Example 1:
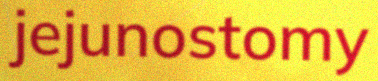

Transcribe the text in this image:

jejunostomy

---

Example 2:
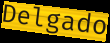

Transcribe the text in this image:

Delgado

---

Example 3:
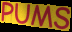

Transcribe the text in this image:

PUMS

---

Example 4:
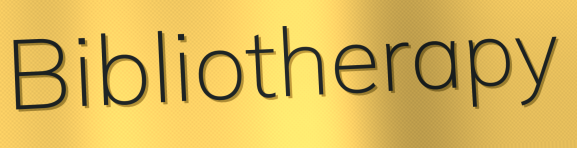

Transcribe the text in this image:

Bibliotherapy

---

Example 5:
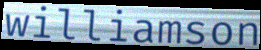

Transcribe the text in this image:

williamson